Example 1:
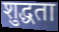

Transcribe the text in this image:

शुद्धता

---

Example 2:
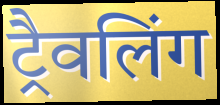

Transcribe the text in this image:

ट्रैवलिंग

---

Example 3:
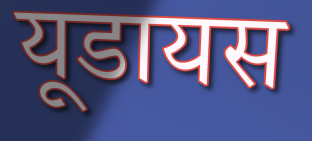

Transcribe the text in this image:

यूडायस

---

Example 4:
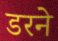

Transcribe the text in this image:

डरने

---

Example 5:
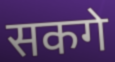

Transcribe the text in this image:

सकगे